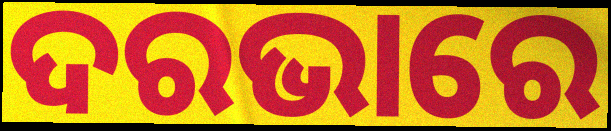
ଦରଭାରେ